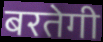
बरतेगी